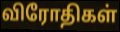
விரோதிகள்